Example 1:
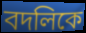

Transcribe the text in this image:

বদলিকে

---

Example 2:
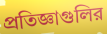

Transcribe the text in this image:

প্রতিজ্ঞাগুলির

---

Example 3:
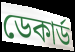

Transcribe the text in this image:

ডেকার্ড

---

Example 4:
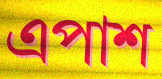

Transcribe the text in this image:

এপাশ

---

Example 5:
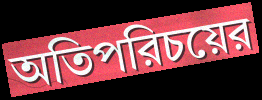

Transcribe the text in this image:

অতিপরিচয়ের